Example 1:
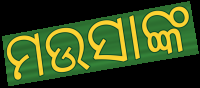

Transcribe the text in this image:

ମଉସାଙ୍କ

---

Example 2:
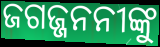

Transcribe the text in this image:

ଜଗଜ୍ଜନନୀଙ୍କୁ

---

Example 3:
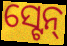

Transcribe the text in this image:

ସ୍ଟେନ୍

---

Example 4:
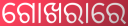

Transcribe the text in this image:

ଗୋଖରାରେ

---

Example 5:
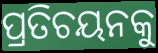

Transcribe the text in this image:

ପ୍ରତିଚୟନକୁ